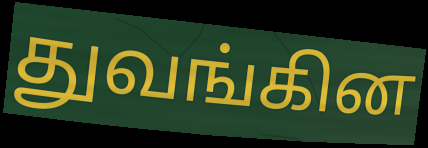
துவங்கின